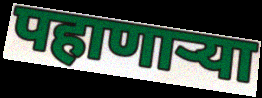
पहाणार्‍या